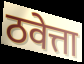
ठवेत्ता